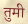
तुमी